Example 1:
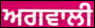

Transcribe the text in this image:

ਅਗਵਾਲੀ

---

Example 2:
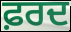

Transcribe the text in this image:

ਫ਼ਰਦ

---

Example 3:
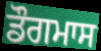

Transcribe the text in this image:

ਡੌਗਮਾਸ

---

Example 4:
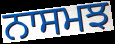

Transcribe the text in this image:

ਨਾਸਮਝ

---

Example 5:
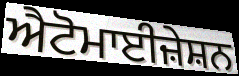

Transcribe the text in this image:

ਐਟੋਮਾਈਜ਼ੇਸ਼ਨ